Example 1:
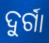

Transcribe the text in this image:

ଦୁର୍ଗା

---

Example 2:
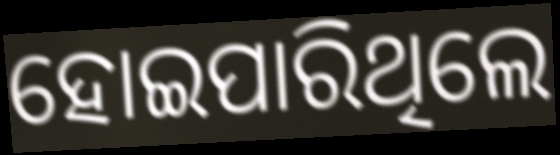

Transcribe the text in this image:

ହୋଇପାରିଥିଲେ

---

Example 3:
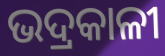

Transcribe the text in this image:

ଭଦ୍ରକାଳୀ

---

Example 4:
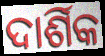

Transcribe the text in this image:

ଦାର୍ଶିକ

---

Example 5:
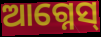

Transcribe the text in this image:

ଆଗ୍ନେସ୍